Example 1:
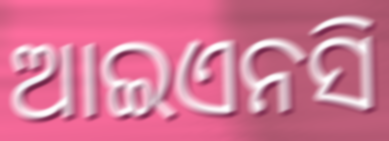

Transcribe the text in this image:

ଆଇଏନସି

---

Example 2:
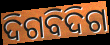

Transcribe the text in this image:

ଦିଗବିଦିଗ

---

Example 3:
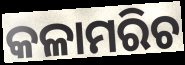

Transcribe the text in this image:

କଳାମରିଚ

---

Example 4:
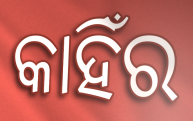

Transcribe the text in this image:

କାହିଁର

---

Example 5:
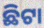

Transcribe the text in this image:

ଛିଟା